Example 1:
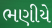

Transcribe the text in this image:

ભણીયે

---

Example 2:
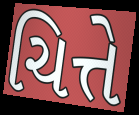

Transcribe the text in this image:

ચિત્તે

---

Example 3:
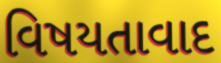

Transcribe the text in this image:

વિષયતાવાદ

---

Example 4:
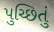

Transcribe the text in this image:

પુચ્છિતું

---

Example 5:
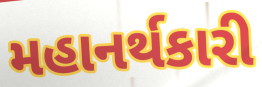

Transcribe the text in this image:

મહાનર્થકારી